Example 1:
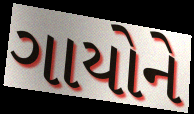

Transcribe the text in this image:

ગાયોને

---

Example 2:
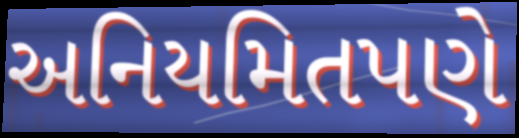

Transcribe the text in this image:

અનિયમિતપણે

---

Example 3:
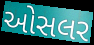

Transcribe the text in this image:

ઓસલર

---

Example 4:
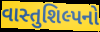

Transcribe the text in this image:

વાસ્તુશિલ્પનો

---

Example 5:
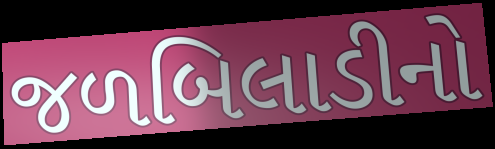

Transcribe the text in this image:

જળબિલાડીનો